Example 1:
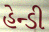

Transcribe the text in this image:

હેન્ડી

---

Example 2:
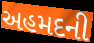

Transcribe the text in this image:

અહમદની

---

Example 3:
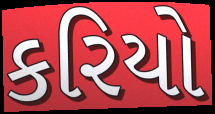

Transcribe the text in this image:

કરિયો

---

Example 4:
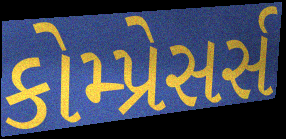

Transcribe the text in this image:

કોમ્પ્રેસર્સ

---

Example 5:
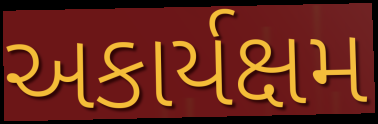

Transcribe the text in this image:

અકાર્યક્ષમ